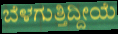
ಬೆಳಗುತ್ತಿದ್ದೀಯೆ